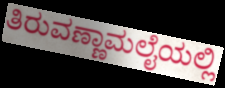
ತಿರುವಣ್ಣಾಮಲೈಯಲ್ಲಿ